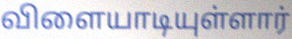
விளையாடியுள்ளார்